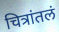
चित्रांतलं